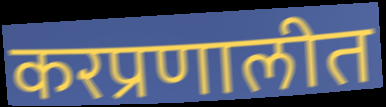
करप्रणालीत